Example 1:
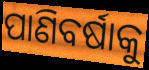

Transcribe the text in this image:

ପାଣିବର୍ଷାକୁ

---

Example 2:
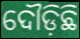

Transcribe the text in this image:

ଦୌଡ଼ିଛି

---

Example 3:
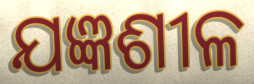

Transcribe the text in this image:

ଯଜ୍ଞଶୀଳ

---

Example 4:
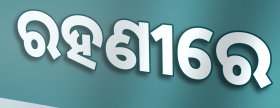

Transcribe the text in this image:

ରହଣୀରେ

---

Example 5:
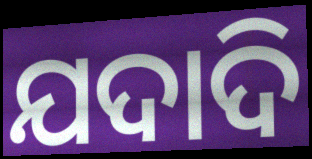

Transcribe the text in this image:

ଯଦାଦି